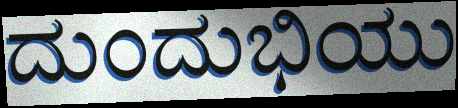
ದುಂದುಭಿಯು